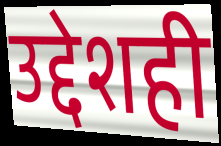
उद्देशही